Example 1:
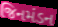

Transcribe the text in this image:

જિનમંડન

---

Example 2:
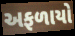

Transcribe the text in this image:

અફળાયો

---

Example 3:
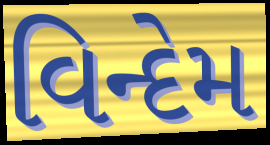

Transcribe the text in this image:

વિન્દેમ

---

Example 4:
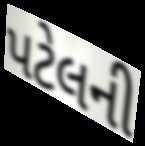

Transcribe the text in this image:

પટેલની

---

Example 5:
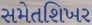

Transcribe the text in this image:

સમેતશિખર